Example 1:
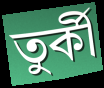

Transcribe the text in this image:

তুৰ্কী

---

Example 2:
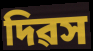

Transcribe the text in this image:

দিৱস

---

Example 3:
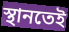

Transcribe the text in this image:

স্থানতেই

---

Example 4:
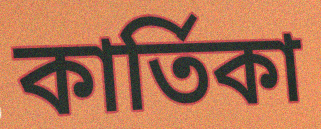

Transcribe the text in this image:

কাৰ্তিকা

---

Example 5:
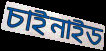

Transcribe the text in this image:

চাইনাইড